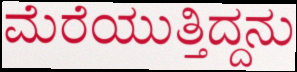
ಮೆರೆಯುತ್ತಿದ್ದನು